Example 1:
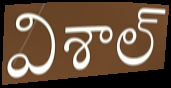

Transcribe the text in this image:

విశాల్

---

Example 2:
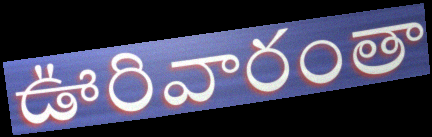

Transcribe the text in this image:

ఊరివారంతా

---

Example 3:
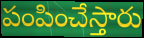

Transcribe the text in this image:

పంపించేస్తారు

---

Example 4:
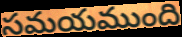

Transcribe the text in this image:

సమయముంది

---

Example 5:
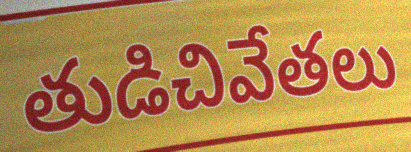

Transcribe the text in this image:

తుడిచివేతలు